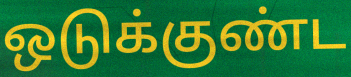
ஒடுக்குண்ட